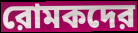
রোমকদের